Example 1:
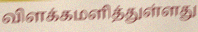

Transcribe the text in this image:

விளக்கமளித்துள்ளது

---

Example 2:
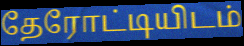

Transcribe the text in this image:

தேரோட்டியிடம்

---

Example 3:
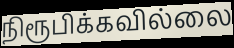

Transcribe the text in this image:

நிரூபிக்கவில்லை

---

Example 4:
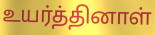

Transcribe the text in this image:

உயர்த்தினாள்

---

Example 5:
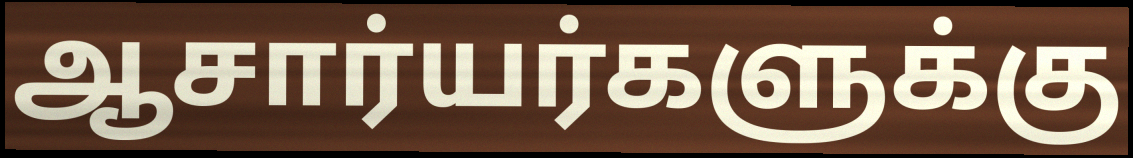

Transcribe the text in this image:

ஆசார்யர்களுக்கு